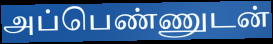
அப்பெண்ணுடன்